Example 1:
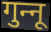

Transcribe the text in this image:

गुन्नू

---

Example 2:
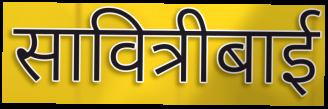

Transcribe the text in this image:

सावित्रीबाई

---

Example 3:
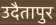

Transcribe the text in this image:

उदैतापुर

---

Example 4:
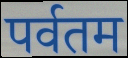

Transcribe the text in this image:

पर्वतम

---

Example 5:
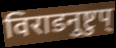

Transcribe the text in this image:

विराडनुष्टुप्